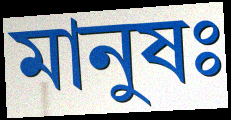
মানুষঃ